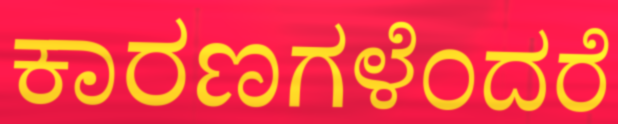
ಕಾರಣಗಳೆಂದರೆ